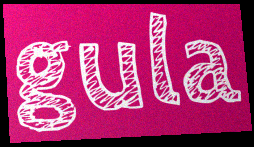
gula